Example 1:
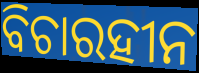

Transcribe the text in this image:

ବିଚାରହୀନ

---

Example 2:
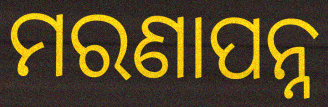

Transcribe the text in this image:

ମରଣାପନ୍ନ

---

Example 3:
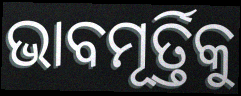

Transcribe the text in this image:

ଭାବମୂର୍ତ୍ତିକୁ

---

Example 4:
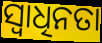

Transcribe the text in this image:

ସ୍ଵାଧିନତା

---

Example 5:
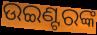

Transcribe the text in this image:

ଉଇଣ୍ଟରଙ୍କ